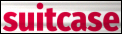
suitcase